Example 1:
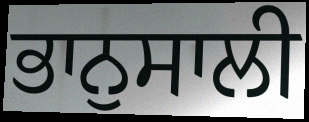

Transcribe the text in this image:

ਭਾਨੁਸਾਲੀ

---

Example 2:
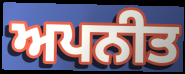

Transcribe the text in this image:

ਅਪਨੀਤ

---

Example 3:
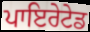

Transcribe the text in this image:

ਪਾਇਰੇਟੇਡ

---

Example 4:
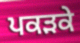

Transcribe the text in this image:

ਪਕੜਕੇ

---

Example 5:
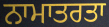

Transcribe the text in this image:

ਨਾਮਾਤਰਤਾ